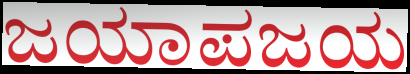
ಜಯಾಪಜಯ